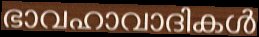
ഭാവഹാവാദികൾ